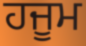
ਹਜੂਮ